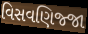
વિસવણિજ્જા